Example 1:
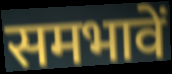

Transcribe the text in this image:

समभावें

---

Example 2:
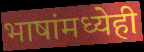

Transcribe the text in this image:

भाषांमध्येही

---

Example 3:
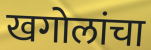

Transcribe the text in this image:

खगोलांचा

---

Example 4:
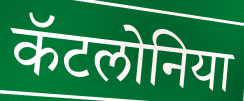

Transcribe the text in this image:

कॅटलोनिया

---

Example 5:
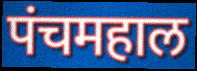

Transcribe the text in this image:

पंचमहाल